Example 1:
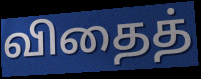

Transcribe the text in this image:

விதைத்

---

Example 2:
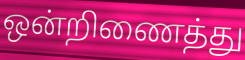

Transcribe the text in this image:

ஒன்றிணைத்து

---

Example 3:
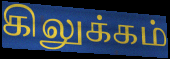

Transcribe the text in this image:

கிலுக்கம்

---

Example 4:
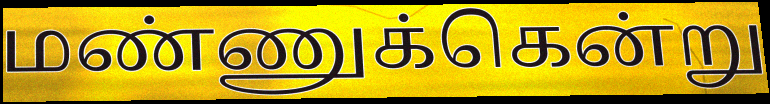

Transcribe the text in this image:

மண்ணுக்கென்று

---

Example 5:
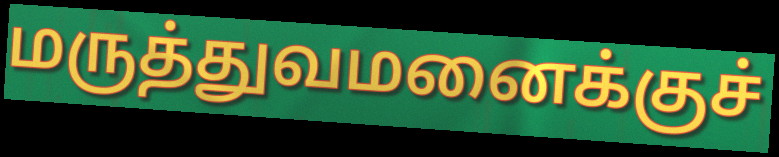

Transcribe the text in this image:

மருத்துவமனைக்குச்